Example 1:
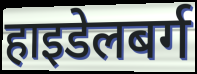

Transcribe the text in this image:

हाइडेलबर्ग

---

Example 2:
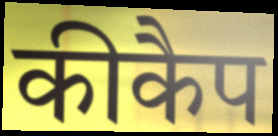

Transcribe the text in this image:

कीकैप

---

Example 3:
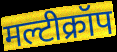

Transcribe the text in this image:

मल्टीक्रॉप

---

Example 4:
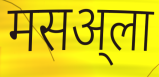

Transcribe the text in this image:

मसअ्ला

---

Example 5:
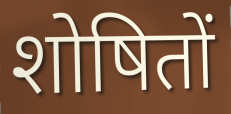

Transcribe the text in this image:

शोषितों